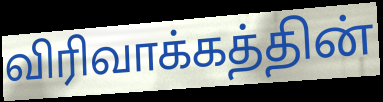
விரிவாக்கத்தின்